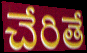
చేరితే